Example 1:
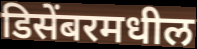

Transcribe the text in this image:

डिसेंबरमधील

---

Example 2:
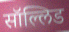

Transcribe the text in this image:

सॉल्लिड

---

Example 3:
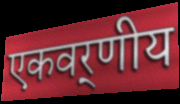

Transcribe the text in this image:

एकवर्णीय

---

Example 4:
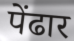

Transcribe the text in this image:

पेंढार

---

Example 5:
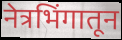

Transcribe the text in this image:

नेत्रभिंगातून